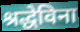
श्रद्धेविना